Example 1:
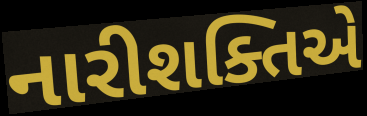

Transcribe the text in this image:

નારીશક્તિએ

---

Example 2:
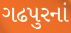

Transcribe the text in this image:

ગઢપુરનાં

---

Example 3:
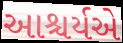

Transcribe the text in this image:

આશ્ચર્યએ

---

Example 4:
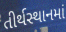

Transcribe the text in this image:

તીર્થસ્થાનમાં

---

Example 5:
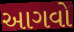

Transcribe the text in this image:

આગવો